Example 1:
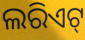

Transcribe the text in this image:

ଲରିଏଟ୍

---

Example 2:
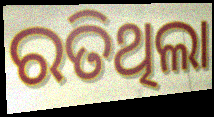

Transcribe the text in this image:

ରତିଥିଲା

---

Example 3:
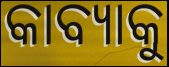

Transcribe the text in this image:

କାବ୍ୟାକୁ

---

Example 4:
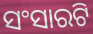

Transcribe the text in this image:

ସଂସାରଟି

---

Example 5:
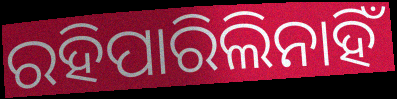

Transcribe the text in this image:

ରହିପାରିଲିନାହିଁ